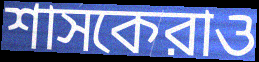
শাসকেরাও